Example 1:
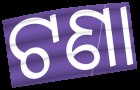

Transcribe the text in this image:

ଟଣା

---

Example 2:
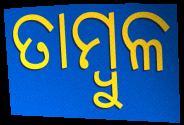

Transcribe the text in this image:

ତାମ୍ୱୁଳ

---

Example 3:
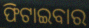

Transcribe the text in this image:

ଫିଟାଇବାର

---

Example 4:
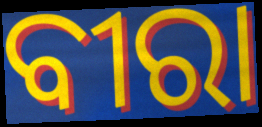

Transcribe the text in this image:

ବୀରା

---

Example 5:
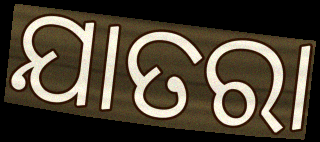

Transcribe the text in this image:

ଯାତରା